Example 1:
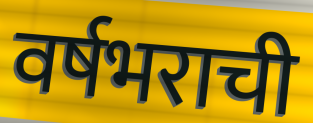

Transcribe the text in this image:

वर्षभराची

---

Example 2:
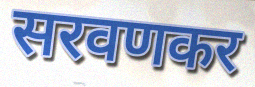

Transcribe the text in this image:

सरवणकर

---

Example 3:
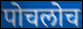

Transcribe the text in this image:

पोचलोच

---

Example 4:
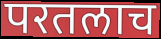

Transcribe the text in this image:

परतलाच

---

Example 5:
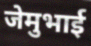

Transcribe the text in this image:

जेमुभाई